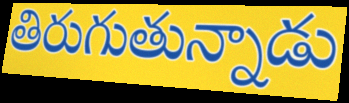
తిరుగుతున్నాడు